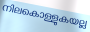
നിലകൊള്ളുകയല്ല